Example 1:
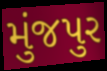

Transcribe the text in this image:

મુંજપુર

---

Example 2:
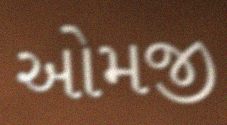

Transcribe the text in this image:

ઓમજી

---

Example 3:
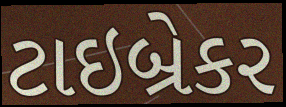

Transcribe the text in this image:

ટાઇબ્રેકર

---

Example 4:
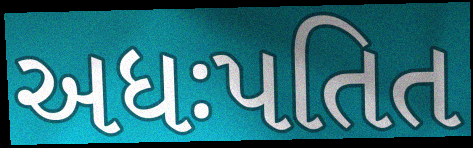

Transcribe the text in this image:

અધઃપતિત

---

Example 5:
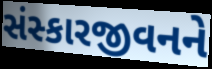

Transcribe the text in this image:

સંસ્કારજીવનને